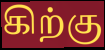
கிற்கு